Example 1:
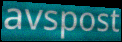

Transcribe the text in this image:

avspost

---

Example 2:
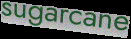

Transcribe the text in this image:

sugarcane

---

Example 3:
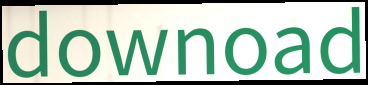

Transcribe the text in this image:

downoad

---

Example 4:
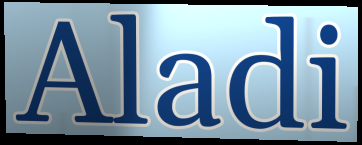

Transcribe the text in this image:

Aladi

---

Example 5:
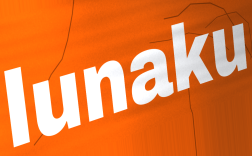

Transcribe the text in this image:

lunaku